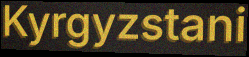
Kyrgyzstani